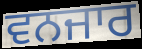
ਵਨਜਾਰ